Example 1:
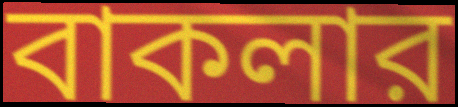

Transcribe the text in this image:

বাকলার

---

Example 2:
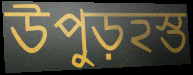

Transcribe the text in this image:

উপুড়হস্ত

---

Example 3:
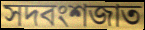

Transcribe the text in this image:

সদবংশজাত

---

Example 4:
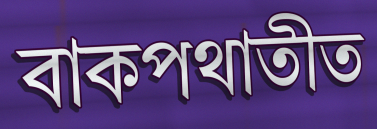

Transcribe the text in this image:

বাকপথাতীত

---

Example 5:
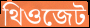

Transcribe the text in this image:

থিওজেট